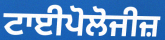
ਟਾਈਪੋਲੋਜੀਜ਼